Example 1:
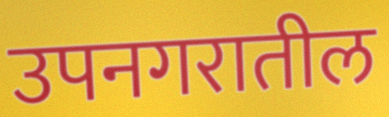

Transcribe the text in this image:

उपनगरातील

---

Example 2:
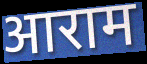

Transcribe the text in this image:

आराम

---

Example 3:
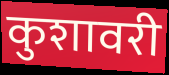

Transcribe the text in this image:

कुशावरी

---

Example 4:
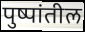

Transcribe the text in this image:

पुष्पांतील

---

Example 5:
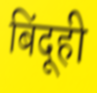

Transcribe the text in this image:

बिंदूही